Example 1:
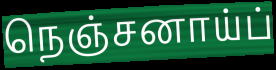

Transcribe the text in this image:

நெஞ்சனாய்ப்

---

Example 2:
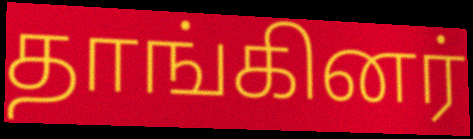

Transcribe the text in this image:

தாங்கினர்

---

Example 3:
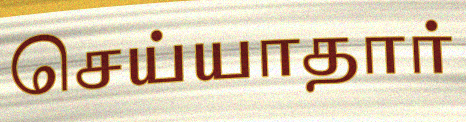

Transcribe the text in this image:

செய்யாதார்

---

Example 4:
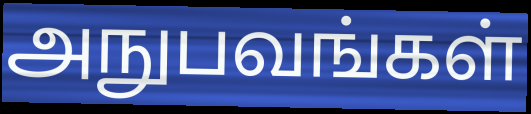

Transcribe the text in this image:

அநுபவங்கள்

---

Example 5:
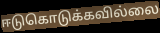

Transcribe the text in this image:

ஈடுகொடுக்கவில்லை